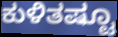
ಕುಳಿತಷ್ಟೂ